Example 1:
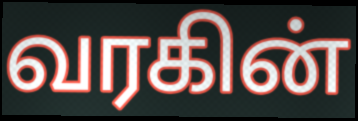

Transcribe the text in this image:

வரகின்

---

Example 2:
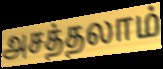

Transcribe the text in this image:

அசத்தலாம்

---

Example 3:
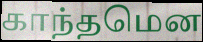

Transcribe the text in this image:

காந்தமென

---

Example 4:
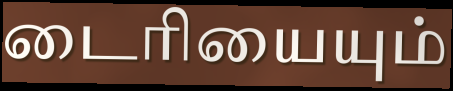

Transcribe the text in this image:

டைரியையும்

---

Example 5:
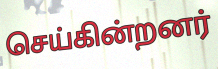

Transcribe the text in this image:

செய்கின்றனர்